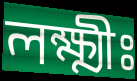
লক্ষ্মীঃ